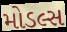
મોડલ્સ